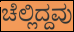
ಚೆಲ್ಲಿದ್ದವು